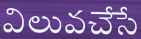
విలువచేసే